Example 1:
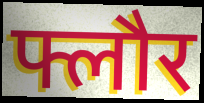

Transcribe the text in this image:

फ्लौर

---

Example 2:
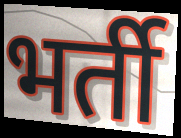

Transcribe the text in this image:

भर्ती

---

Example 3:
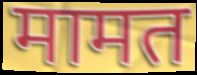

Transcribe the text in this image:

मामत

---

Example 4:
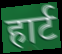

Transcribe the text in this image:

हार्ट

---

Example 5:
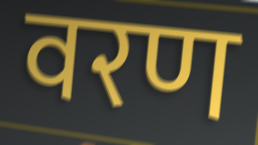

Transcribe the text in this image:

वरण